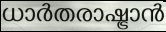
ധാർതരാഷ്ട്രാൻ